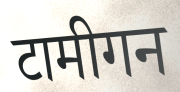
टामीगन